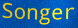
Songer